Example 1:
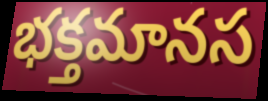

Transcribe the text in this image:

భక్తమానస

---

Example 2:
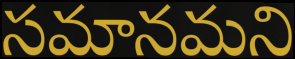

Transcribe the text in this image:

సమానమని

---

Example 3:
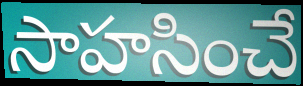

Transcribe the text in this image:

సాహసించే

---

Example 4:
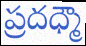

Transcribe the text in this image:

ప్రదధ్మౌ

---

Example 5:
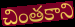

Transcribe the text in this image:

చింతకాని